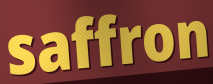
saffron